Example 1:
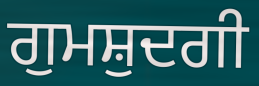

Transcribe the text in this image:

ਗੁਮਸ਼ੁਦਗੀ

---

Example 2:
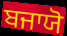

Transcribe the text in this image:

ਬਜਾਯੋ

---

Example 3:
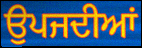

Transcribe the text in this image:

ਉਪਜਦੀਆਂ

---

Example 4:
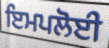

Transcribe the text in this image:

ਇਮਪਲੋਈ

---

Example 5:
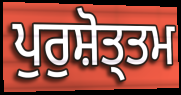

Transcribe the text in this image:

ਪੁਰੁਸ਼ੋਤ੍ਤਮ